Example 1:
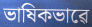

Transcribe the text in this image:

ভাষিকভাৱে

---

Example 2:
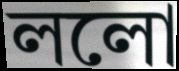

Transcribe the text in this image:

ললো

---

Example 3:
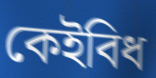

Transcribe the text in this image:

কেইবিধ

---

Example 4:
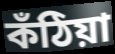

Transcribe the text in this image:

কঁঠিয়া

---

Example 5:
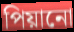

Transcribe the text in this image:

পিয়ানো